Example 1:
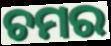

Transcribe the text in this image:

ଚମର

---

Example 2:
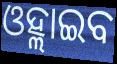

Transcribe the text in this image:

ଓହ୍ଲାଇବ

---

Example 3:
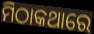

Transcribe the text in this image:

ମିଠାକଥାରେ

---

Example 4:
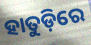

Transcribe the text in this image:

ହାତୁଡ଼ିରେ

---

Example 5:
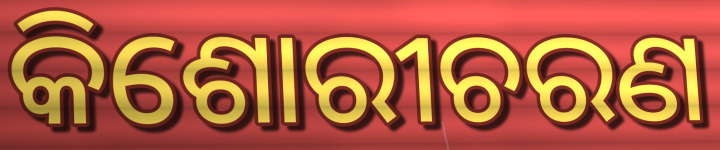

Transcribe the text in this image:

କିଶୋରୀଚରଣ